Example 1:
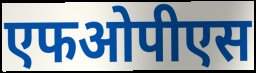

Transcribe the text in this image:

एफओपीएस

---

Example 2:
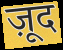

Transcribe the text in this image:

ज़ूद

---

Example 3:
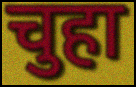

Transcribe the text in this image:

चुहा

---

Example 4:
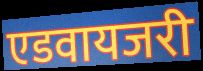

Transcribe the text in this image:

एडवायजरी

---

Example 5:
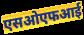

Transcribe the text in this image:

एसओएफआई